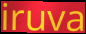
iruva